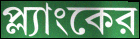
প্ল্যাংকের